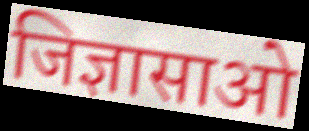
जिज्ञासाओ